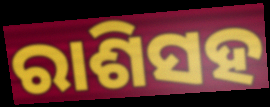
ରାଶିସହ